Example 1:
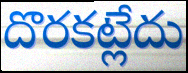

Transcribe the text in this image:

దొరకట్లేదు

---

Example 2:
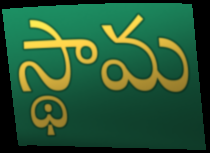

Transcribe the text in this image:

స్థామ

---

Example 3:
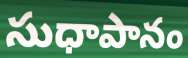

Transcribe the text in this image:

సుధాపానం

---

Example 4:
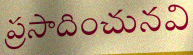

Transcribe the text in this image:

ప్రసాదించునవి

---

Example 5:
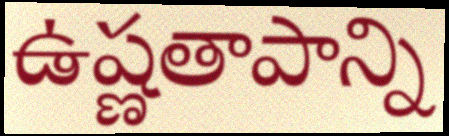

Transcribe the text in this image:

ఉష్ణతాపాన్ని